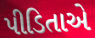
પીડિતાએ